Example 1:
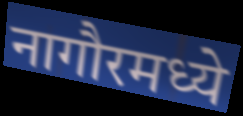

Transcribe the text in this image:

नागौरमध्ये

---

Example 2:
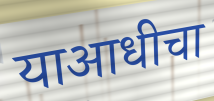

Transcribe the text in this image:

याआधीचा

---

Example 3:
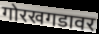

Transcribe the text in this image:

गोरखगडावर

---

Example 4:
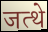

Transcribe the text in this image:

जत्थे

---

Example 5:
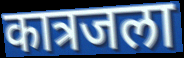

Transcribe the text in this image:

कात्रजला